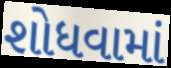
શોધવામાં